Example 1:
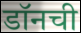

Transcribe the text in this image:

डॉनची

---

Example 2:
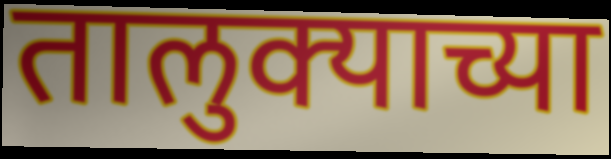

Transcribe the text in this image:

तालुक्याच्या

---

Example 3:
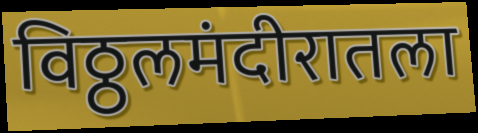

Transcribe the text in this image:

विठ्ठलमंदीरातला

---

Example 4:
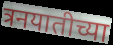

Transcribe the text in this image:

त्रनयातीच्या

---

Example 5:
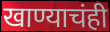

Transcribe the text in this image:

खाण्याचंही